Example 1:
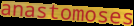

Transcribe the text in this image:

anastomoses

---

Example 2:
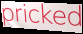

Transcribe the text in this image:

pricked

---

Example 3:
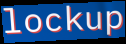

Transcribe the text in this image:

lockup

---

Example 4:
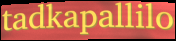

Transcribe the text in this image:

tadkapallilo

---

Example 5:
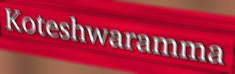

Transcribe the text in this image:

Koteshwaramma